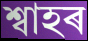
শ্বাহৰ